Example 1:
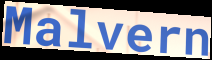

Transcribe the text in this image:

Malvern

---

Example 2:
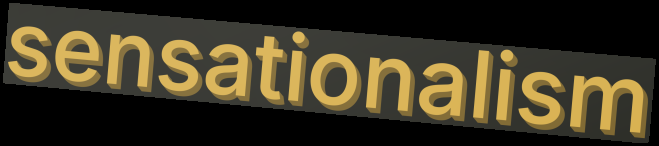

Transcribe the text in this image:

sensationalism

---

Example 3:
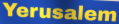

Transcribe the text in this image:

Yerusalem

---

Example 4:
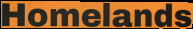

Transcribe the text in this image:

Homelands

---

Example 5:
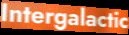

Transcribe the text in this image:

Intergalactic